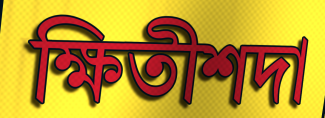
ক্ষিতীশদা